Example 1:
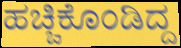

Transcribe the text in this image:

ಹಚ್ಚಿಕೊಂಡಿದ್ದ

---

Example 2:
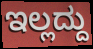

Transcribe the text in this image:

ಇಲ್ಲದ್ದು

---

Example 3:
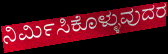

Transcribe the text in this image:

ನಿರ್ಮಿಸಿಕೊಳ್ಳುವುದರ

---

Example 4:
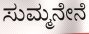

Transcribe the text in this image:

ಸುಮ್ಮನೇನೆ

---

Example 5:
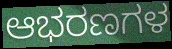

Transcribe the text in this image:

ಆಭರಣಗಳ